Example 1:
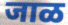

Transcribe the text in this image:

जाळ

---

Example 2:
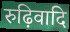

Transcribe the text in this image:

रुढ़िवादि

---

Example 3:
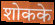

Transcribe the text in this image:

शोकके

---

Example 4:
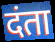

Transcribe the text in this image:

दंता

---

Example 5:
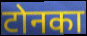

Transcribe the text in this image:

टोनका